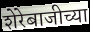
शेरेबाजीच्या